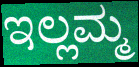
ಇಲ್ಲಮ್ಮ